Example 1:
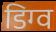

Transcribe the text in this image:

डिग्व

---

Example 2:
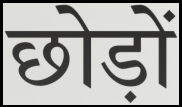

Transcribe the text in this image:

छोड़ों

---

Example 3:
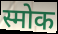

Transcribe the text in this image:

स्मोक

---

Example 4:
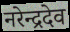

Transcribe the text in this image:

नरेन्द्रदेव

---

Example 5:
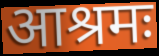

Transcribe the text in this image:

आश्रमः